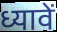
ध्यावें